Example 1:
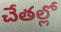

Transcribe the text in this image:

చేతల్లో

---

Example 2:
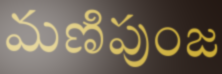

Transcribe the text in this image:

మణిపుంజ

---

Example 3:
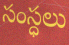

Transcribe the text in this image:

సంస్ధలు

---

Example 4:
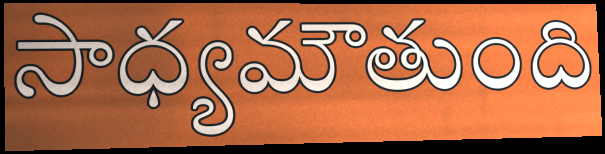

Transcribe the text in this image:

సాధ్యమౌతుంది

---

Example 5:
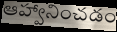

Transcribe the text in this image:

ఆహ్వానించడం